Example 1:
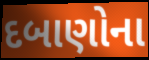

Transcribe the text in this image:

દબાણોના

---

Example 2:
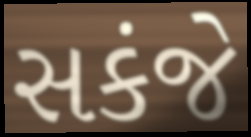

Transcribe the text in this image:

સકંજે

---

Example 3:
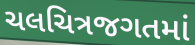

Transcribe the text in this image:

ચલચિત્રજગતમાં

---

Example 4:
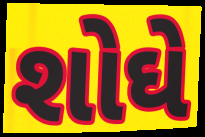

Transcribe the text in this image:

શોઘે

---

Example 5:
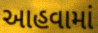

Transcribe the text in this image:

આહવામાં